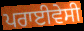
ਪਰਾਈਵੇਸੀ